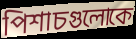
পিশাচগুলোকে